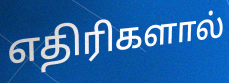
எதிரிகளால்